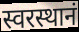
स्वरस्थानं